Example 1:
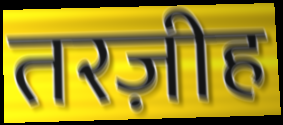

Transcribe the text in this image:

तरज़ीह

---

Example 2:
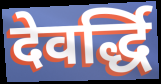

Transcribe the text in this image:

देवर्द्धि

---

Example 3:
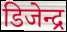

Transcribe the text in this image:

डिजेन्द्र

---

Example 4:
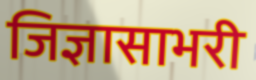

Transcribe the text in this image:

जिज्ञासाभरी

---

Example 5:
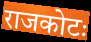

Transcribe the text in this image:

राजकोटः